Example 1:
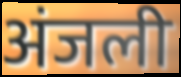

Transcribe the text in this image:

अंजली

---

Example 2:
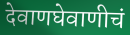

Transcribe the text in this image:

देवाणघेवाणीचं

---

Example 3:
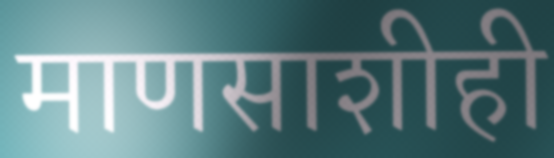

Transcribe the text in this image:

माणसाशीही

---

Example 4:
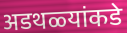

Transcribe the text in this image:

अडथळ्यांकडे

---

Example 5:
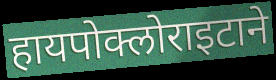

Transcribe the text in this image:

हायपोक्लोराइटाने